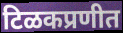
टिळकप्रणीत